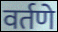
वर्तणे